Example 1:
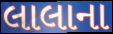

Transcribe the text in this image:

લાલાના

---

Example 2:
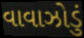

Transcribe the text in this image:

વાવાઝોડું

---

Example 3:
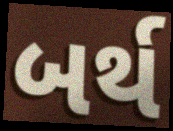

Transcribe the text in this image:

બર્થ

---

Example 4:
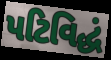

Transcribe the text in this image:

પટિવિદ્ધં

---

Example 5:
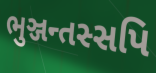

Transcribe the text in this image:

ભુઞ્જન્તસ્સપિ